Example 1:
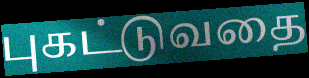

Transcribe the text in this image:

புகட்டுவதை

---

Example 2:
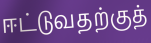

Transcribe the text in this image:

ஈட்டுவதற்குத்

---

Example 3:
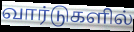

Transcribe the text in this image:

வார்டுகளில்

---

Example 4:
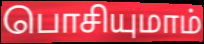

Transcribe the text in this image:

பொசியுமாம்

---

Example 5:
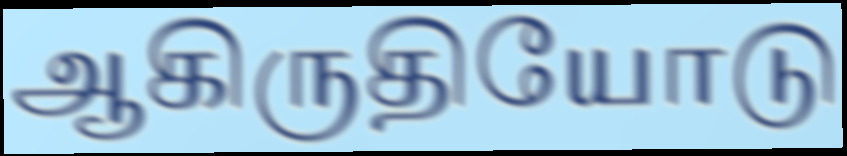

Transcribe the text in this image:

ஆகிருதியோடு